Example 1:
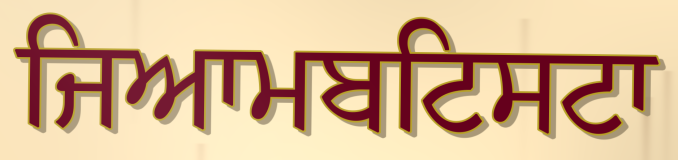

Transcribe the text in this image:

ਜਿਆਮਬਟਿਸਟਾ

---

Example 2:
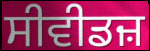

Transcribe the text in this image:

ਸੀਵੀਡਜ਼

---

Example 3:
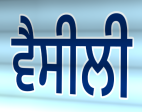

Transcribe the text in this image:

ਵੈਸੀਲੀ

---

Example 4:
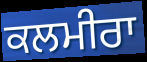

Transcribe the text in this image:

ਕਲਮੀਰਾ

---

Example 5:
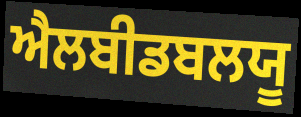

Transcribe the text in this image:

ਐਲਬੀਡਬਲਯੂ